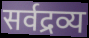
सर्वद्रव्य